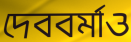
দেববর্মাও